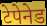
टेपेनेड